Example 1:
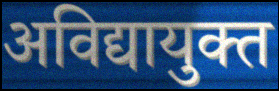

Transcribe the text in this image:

अविद्यायुक्त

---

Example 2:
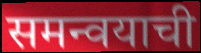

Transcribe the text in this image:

समन्वयाची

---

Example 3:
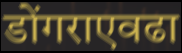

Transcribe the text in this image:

डोंगराएवढा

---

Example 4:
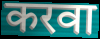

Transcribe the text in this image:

करवा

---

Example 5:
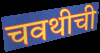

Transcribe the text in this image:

चवथीची